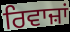
ਰਿਵਾਜ਼ਾਂ